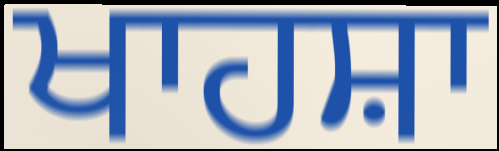
ਖਾਹਸ਼ਾ